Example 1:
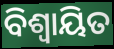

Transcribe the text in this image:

ବିଶ୍ବାୟିତ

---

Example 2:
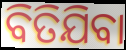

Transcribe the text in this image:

ବିତିଯିବା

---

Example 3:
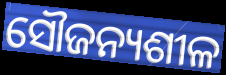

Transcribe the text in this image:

ସୌଜନ୍ୟଶୀଳ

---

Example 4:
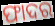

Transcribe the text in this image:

ଫାଦର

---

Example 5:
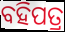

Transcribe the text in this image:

ବହିପତ୍ର